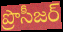
ప్రొసీజర్